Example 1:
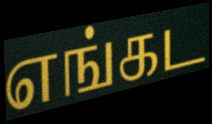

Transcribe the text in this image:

எங்கட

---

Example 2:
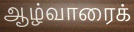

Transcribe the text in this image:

ஆழ்வாரைக்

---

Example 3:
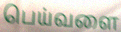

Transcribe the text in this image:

பெய்வளை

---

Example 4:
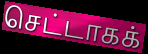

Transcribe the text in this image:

செட்டாகக்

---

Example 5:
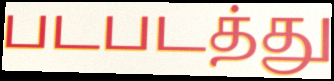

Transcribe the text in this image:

படபடத்து